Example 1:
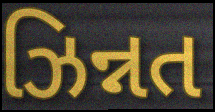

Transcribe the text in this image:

ઝિન્નત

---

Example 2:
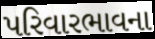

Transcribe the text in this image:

પરિવારભાવના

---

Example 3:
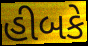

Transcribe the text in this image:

હીબકે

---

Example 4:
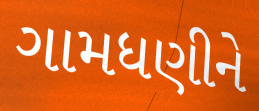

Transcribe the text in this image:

ગામધણીને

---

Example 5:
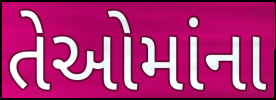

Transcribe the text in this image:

તેઓમાંના